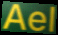
Ael